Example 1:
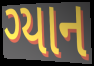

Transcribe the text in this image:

ગ્યાન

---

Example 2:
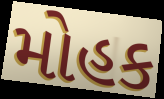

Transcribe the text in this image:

મોહક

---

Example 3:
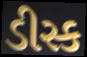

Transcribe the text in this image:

ડીસ્ક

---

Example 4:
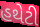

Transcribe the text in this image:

હથેટી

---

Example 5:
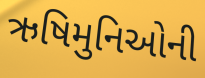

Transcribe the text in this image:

ઋષિમુનિઓની